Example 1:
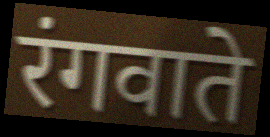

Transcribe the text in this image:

रंगवाते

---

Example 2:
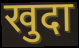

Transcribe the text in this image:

खुदा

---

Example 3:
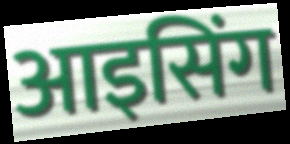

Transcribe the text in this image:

आइसिंग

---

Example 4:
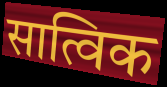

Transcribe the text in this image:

सात्विक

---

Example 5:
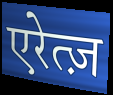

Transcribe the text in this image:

एरेत्ज़